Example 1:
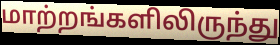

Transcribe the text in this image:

மாற்றங்களிலிருந்து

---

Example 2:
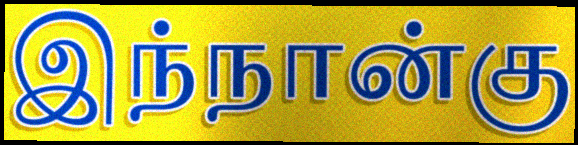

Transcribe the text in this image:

இந்நான்கு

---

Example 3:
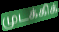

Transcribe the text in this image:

முடக்கிக்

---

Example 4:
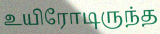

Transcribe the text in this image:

உயிரோடிருந்த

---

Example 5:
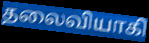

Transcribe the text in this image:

தலைவியாகி